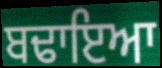
ਬਢਾਇਆ